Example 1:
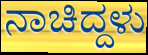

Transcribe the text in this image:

ನಾಚಿದ್ದಳು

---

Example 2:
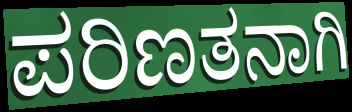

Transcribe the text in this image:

ಪರಿಣತನಾಗಿ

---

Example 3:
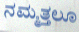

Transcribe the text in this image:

ನಮ್ಮತ್ತಲೂ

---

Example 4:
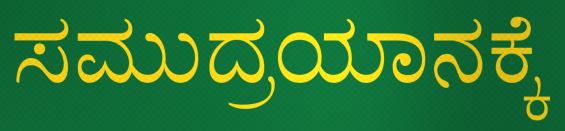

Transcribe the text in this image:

ಸಮುದ್ರಯಾನಕ್ಕೆ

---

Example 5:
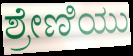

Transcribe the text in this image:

ಶ್ರೇಣಿಯು